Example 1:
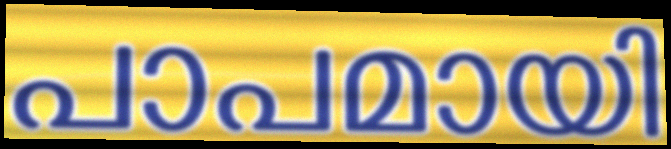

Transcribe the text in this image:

പാപമായി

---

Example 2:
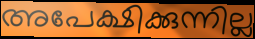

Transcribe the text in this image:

അപേക്ഷിക്കുന്നില്ല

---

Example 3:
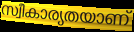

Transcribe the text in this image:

സ്വീകാര്യതയാണ്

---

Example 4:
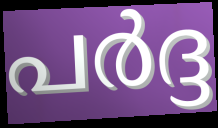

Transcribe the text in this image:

പർദ്ദ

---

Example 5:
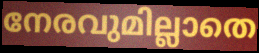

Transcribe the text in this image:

നേരവുമില്ലാതെ